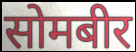
सोमबीर